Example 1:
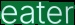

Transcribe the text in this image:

eater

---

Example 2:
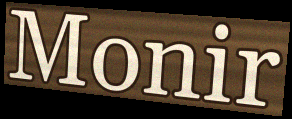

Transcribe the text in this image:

Monir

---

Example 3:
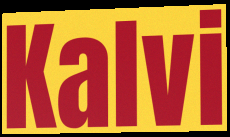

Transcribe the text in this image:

Kalvi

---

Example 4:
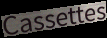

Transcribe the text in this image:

Cassettes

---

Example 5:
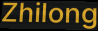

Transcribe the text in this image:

Zhilong